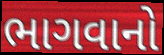
ભાગવાનો